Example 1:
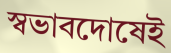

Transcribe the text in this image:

স্বভাবদোষেই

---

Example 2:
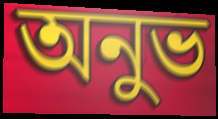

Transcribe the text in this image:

অনুভ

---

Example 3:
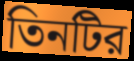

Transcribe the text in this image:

তিনটির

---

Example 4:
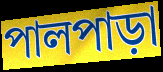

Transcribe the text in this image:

পালপাড়া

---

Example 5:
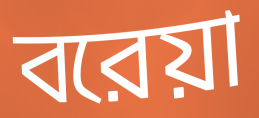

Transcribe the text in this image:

বরেয়া